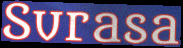
Surasa